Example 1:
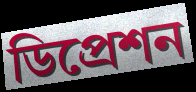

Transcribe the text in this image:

ডিপ্রেশন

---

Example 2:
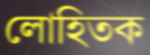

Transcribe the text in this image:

লোহিতক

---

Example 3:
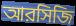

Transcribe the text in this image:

আরসিজি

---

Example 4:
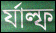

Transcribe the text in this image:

র্যাল্ফ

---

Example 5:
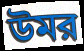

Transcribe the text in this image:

উমর